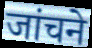
जांचने